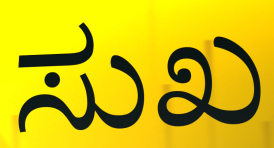
ಸುಖ